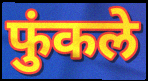
फुंकले